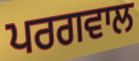
ਪਰਗਵਾਲ